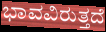
ಭಾವವಿರುತ್ತದೆ